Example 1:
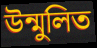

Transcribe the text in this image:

উন্মুলিত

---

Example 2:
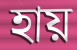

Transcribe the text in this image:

হায়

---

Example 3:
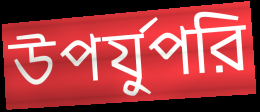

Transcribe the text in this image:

উপর্যুপরি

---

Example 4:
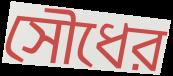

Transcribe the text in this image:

সৌধের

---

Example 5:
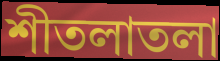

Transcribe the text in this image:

শীতলাতলা